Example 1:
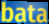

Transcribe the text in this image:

bata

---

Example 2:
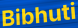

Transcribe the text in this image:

Bibhuti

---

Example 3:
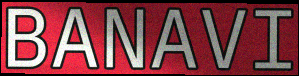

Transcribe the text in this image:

BANAVI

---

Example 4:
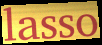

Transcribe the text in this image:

lasso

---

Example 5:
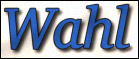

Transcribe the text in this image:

Wahl